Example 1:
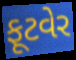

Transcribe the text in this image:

ફૂટવેર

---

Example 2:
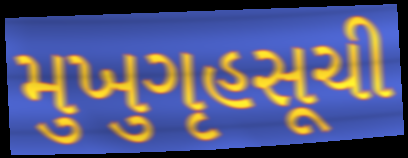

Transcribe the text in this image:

મુખુગૃહસૂચી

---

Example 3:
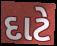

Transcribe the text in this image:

દાટે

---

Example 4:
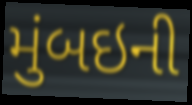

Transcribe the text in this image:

મુંબઇની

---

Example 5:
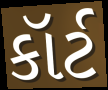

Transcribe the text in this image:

કૉર્ટ